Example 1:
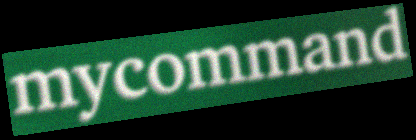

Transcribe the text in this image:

mycommand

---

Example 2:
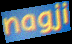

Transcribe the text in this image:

nagji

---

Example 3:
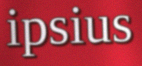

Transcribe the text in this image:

ipsius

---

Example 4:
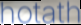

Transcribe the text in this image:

hotath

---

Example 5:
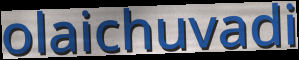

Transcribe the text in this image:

olaichuvadi